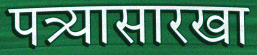
पत्र्यासारखा